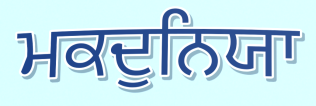
ਮਕਦੁਨਿਯਾ